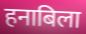
हनाबिला